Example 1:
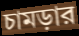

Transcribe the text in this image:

চামড়ার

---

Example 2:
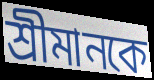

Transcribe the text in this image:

শ্রীমানকে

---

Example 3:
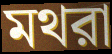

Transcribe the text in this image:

মথরা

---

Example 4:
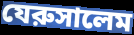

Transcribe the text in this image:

যেরুসালেম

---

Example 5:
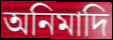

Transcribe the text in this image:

অনিমাদি